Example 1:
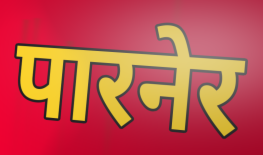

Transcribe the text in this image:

पारनेर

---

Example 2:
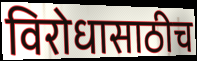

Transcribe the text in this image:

विरोधासाठीच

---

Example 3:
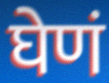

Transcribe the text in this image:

घेणं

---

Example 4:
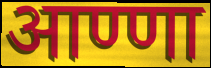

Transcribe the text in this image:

आण्णा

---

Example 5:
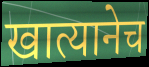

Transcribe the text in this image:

खात्यानेच